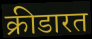
क्रीडारत